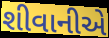
શીવાનીએ